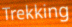
Trekking